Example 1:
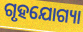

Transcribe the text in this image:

ଗୃହଯୋଗ୍ୟା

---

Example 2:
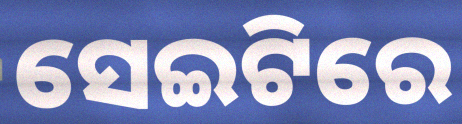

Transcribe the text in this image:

ସେଇଟିରେ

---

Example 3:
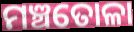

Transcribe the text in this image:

ମଞ୍ଚତୋଳା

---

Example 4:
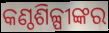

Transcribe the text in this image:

କଣ୍ଠଶିଳ୍ପୀଙ୍କର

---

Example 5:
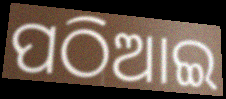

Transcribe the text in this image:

ପଠିଆଇ